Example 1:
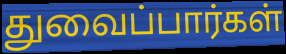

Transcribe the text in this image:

துவைப்பார்கள்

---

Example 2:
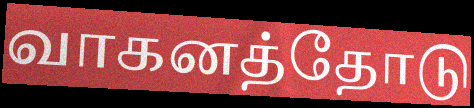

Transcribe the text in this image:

வாகனத்தோடு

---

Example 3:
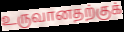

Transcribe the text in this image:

உருவானதற்குக்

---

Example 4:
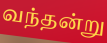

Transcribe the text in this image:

வந்தன்று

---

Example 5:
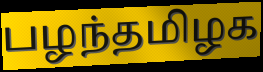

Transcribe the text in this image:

பழந்தமிழக